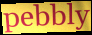
pebbly